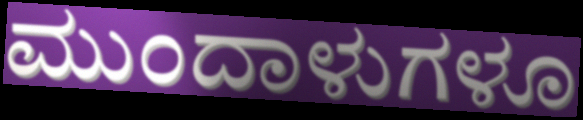
ಮುಂದಾಳುಗಳೂ